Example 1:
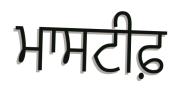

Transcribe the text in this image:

ਮਾਸਟੀਫ਼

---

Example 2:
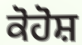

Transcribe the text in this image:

ਕੋਹੋਸ਼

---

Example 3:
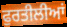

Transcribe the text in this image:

ਫੁਰਤੀਲੀਆਂ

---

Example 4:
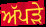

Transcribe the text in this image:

ਅੱਪੜੇ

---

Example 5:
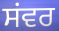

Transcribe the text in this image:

ਸਂਵਰ